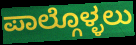
ಪಾಲ್ಗೊಳ್ಳಲು